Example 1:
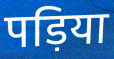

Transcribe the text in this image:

पड़िया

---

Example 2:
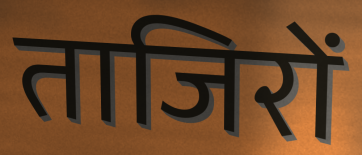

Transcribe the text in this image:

ताजिरों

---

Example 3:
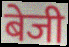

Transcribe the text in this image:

बेजी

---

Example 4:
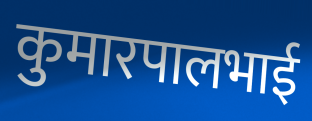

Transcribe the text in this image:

कुमारपालभाई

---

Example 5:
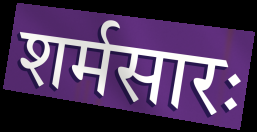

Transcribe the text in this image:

शर्मसारः